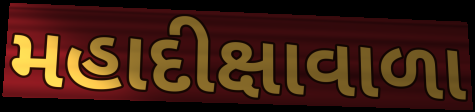
મહાદીક્ષાવાળા